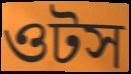
ওটস